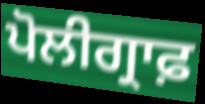
ਪੋਲੀਗ੍ਰਾਫ਼